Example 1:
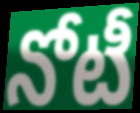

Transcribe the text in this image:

నోటీ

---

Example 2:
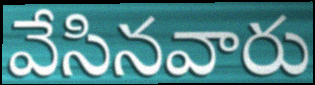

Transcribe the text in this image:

వేసినవారు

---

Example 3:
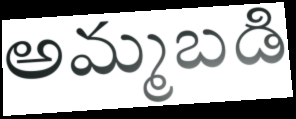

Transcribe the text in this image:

అమ్మబడి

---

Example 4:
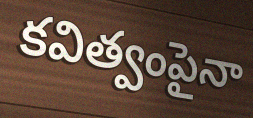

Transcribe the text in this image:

కవిత్వంపైనా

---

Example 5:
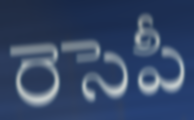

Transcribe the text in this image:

రెసెపీ